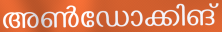
അൺഡോക്കിങ്